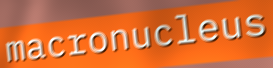
macronucleus